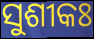
ସୁଶୀକଃ